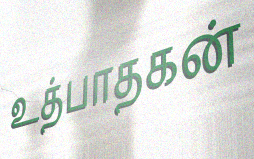
உத்பாதகன்